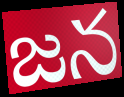
జన